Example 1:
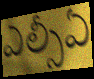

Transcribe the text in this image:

ఎల్సీఏ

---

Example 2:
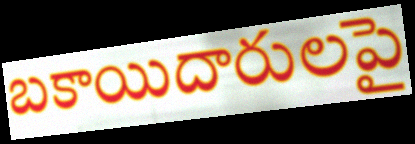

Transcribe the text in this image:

బకాయిదారులపై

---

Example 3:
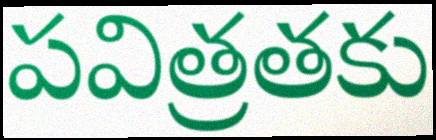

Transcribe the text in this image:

పవిత్రతకు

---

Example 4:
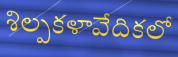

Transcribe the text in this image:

శిల్పకళావేదికలో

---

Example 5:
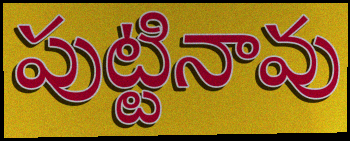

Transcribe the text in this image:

పుట్టినావు